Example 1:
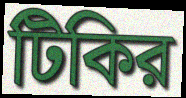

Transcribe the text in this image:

টিকির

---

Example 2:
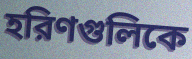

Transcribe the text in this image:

হরিণগুলিকে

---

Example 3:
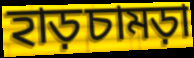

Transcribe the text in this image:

হাড়চামড়া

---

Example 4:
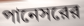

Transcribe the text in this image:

পানেসরের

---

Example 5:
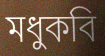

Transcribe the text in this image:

মধুকবি